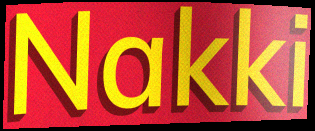
Nakki